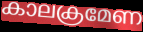
കാലക്രമേണ